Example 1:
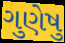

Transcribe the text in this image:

ગુણેષુ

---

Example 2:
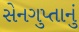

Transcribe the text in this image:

સેનગુપ્‍તાનું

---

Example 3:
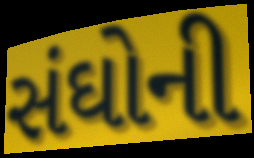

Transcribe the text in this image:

સંઘોની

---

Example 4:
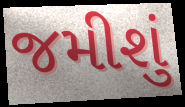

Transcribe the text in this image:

જમીશું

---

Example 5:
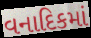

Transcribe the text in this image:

વનાદિકમાં